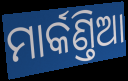
ମାର୍କଣ୍ତିଆ